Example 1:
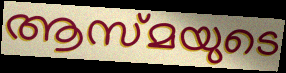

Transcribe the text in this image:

ആസ്മയുടെ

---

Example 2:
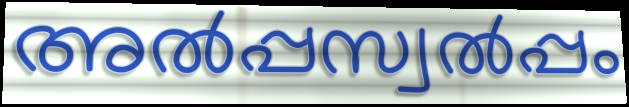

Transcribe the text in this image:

അൽപ്പസ്വൽപ്പം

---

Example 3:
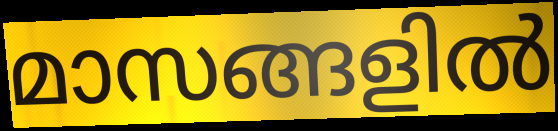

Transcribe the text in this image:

മാസങ്ങളിൽ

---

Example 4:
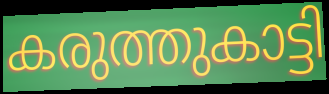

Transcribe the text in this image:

കരുത്തുകാട്ടി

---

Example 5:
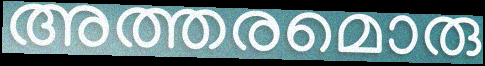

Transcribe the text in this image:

അത്തരമൊരു